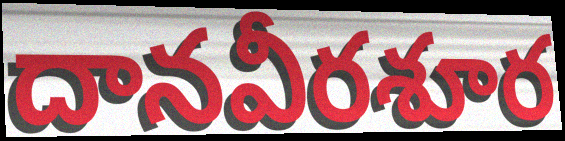
దానవీరశూర